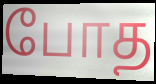
போத